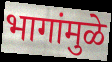
भागांमुळे